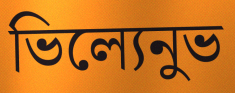
ভিল্যেনুভ